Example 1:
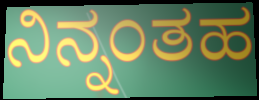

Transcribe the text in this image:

ನಿನ್ನಂತಹ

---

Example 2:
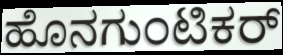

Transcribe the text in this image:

ಹೊನಗುಂಟಿಕರ್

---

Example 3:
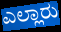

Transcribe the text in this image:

ಎಲ್ಲಾರು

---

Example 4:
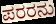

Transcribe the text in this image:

ಪರರನು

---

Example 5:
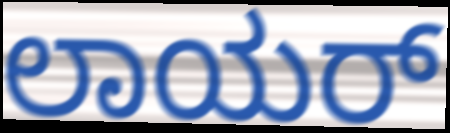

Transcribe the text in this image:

ಲಾಯರ್